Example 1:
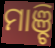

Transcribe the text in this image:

ମାଞ୍ଚି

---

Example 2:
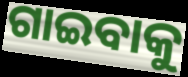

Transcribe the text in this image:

ଗାଇବାକୁ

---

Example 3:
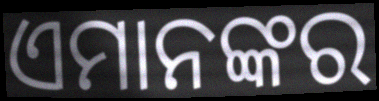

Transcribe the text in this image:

ଏମାନଙ୍କର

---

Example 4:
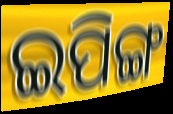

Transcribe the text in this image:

ଇପିଙ୍ଗ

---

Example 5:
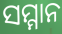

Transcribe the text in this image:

ସମ୍ମାନ